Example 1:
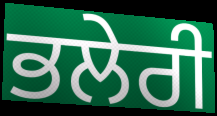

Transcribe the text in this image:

ਭਲੇਰੀ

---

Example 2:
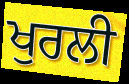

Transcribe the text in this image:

ਖੁਰਲੀ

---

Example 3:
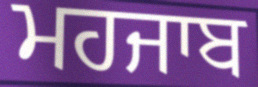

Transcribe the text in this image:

ਮਹਜਾਬ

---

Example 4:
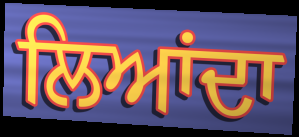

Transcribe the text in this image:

ਲਿਆਂਦਾ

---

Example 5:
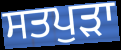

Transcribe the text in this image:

ਸਤਪੁੜਾ